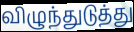
விழுந்துடுத்து